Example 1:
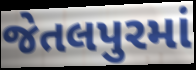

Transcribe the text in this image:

જેતલપુરમાં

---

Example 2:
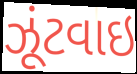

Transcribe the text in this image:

ઝૂંટવાઇ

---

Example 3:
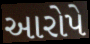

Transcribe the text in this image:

આરોપે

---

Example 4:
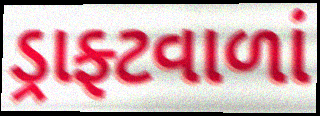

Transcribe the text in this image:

ડ્રાફ્ટવાળાં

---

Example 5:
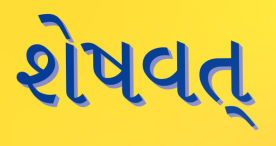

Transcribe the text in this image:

શેષવત્